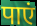
पाएं